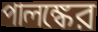
পালঙ্কের